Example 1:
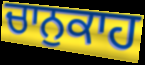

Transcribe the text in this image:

ਚਾਨੁਕਾਹ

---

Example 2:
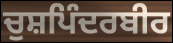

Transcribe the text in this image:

ਚੁਸ਼ਪਿੰਦਰਬੀਰ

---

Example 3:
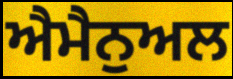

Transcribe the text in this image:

ਐਮੈਨੁਅਲ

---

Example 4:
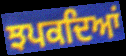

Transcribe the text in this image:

ਝਪਕਦਿਆਂ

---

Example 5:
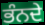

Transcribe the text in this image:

ਭੰਨਦੇ